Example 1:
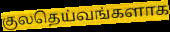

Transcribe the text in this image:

குலதெய்வங்களாக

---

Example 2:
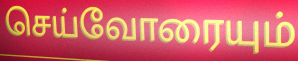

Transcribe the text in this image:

செய்வோரையும்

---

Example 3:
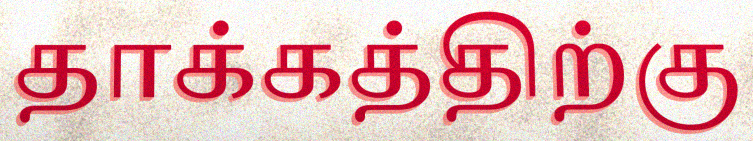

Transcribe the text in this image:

தாக்கத்திற்கு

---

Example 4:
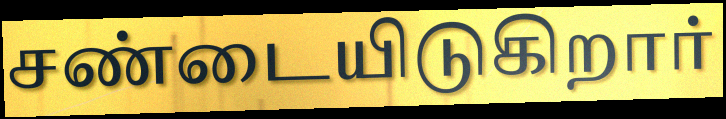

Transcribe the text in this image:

சண்டையிடுகிறார்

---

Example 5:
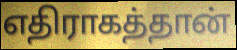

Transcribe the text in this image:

எதிராகத்தான்